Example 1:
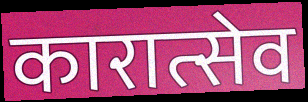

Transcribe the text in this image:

कारात्सेव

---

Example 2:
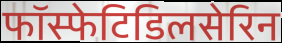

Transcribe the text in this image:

फॉस्फेटिडिलसेरिन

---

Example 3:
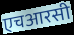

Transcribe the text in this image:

एचआरसी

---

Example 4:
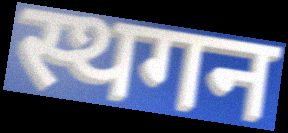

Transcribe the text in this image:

स्थगन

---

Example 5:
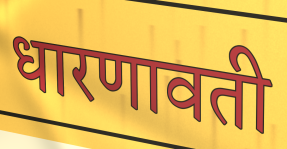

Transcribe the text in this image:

धारणावती